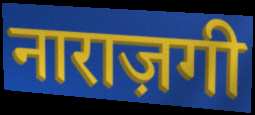
नाराज़गी